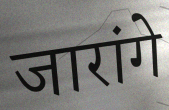
जारांगे